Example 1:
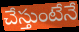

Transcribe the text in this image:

చేస్తుంటేనే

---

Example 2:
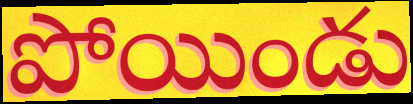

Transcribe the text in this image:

పోయిండు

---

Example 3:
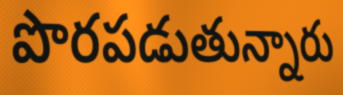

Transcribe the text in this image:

పొరపడుతున్నారు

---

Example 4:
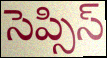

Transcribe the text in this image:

సెప్సిస్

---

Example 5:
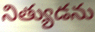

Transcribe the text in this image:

నిత్యుడను